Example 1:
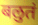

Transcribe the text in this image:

बलुतं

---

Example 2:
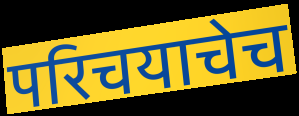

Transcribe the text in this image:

परिचयाचेच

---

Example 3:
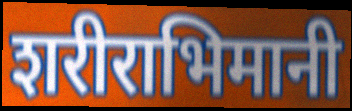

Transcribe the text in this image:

शरीराभिमानी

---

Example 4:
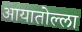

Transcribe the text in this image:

आयातोल्ला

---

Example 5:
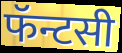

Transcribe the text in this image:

फॅन्टसी